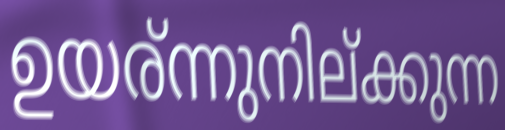
ഉയര്ന്നുനില്ക്കുന്ന